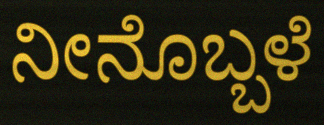
ನೀನೊಬ್ಬಳೆ